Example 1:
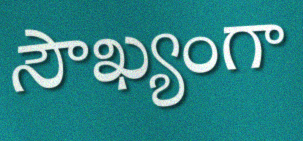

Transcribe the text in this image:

సౌఖ్యంగా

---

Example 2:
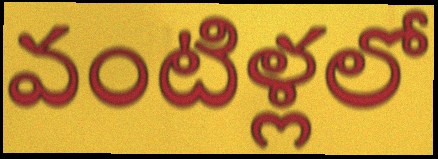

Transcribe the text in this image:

వంటిళ్లలో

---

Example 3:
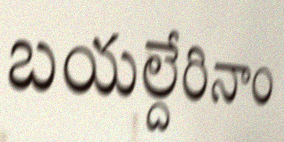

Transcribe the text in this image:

బయల్దేరినాం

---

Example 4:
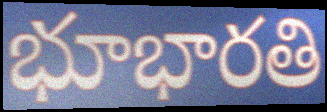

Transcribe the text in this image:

భూభారతి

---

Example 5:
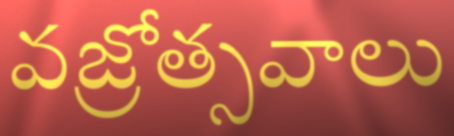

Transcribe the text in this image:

వజ్రోత్సవాలు